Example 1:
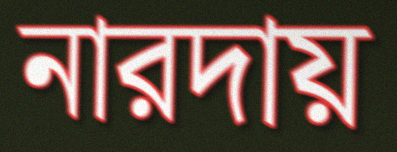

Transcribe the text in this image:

নারদায়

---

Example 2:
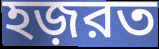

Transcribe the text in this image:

হজ়রত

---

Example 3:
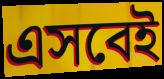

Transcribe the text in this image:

এসবেই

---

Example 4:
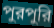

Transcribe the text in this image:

পুরপুরি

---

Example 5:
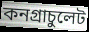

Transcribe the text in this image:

কনগ্রাচুলেট